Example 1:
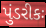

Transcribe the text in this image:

પુંડરીકઃ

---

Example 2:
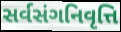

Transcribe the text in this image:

સર્વસંગનિવૃત્તિ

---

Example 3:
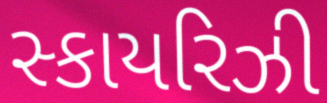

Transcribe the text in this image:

સ્કાયરિઝી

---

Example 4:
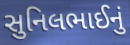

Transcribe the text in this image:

સુનિલભાઈનું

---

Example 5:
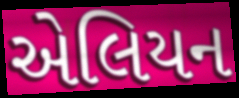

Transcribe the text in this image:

એલિયન